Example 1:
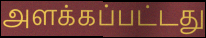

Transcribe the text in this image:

அளக்கப்பட்டது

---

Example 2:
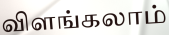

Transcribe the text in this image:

விளங்கலாம்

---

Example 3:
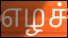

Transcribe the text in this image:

எழச்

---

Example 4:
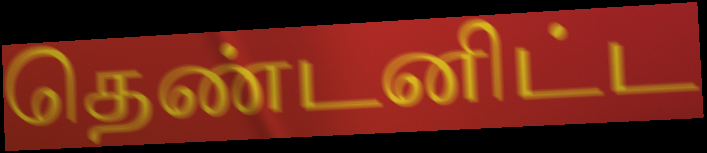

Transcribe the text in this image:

தெண்டனிட்ட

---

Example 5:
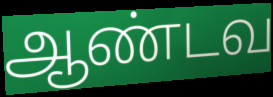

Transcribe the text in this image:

ஆண்டவ